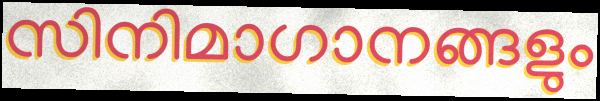
സിനിമാഗാനങ്ങളും